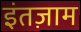
इंतज़ाम